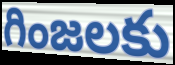
గింజలకు